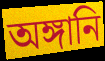
অঙ্গানি